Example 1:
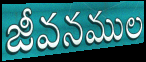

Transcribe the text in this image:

జీవనముల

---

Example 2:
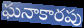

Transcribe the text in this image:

ఘనాకారపు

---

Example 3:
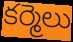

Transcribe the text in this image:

కర్మెలు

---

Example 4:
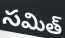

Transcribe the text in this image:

సమిత్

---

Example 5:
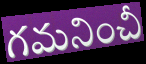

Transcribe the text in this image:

గమనించీ